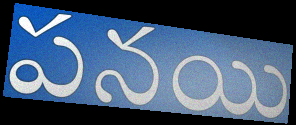
పనయి